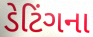
ડેટિંગના